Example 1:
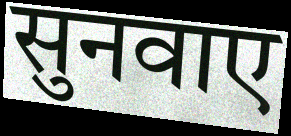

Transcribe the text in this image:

सुनवाए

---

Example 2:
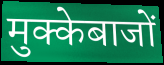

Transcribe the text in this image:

मुक्केबाजों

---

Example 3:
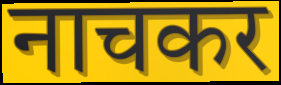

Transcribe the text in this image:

नाचकर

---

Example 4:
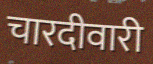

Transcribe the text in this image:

चारदीवारी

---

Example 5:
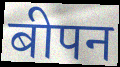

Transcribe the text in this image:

बीपन